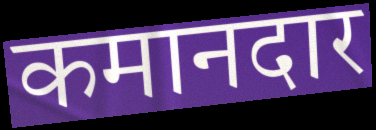
कमानदार